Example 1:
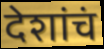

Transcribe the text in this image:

देशांचं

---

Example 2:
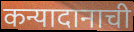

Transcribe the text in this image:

कन्यादानाची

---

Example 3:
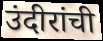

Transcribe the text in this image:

उंदीरांची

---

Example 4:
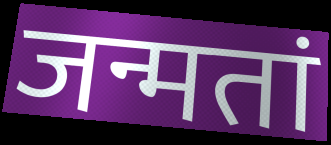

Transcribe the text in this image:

जन्मतां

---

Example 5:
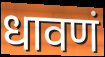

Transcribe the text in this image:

धावणं